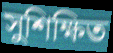
সুশিক্ষিত